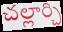
చల్లార్చి